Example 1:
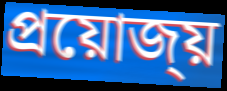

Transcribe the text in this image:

প্ৰয়োজ্য়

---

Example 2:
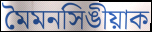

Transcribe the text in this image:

মৈমনসিঙীয়াক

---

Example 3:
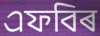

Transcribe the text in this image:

এফবিৰ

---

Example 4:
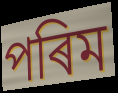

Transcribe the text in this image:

পৰিম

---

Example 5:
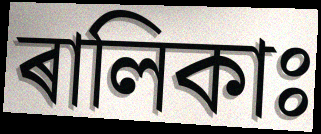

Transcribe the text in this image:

ৰালিকাঃ